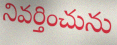
నివర్తించును